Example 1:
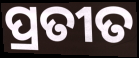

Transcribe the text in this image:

ପ୍ରତୀତ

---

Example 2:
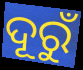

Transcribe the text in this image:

ଦୂରୁଁ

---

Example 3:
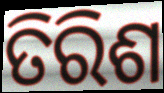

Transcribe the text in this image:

ତିରିଶ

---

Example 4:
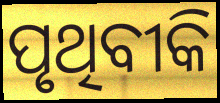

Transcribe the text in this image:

ପୃଥିବୀକି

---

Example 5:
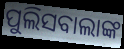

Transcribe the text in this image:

ପୁଲିସବାଲାଙ୍କ